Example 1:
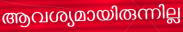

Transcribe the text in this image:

ആവശ്യമായിരുന്നില്ല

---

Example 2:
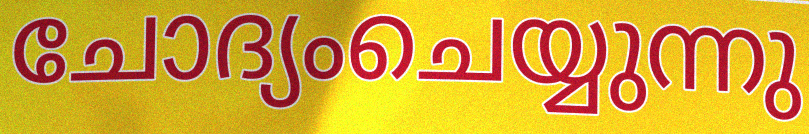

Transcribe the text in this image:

ചോദ്യംചെയ്യുന്നു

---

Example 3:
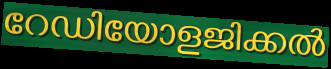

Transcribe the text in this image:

റേഡിയോളജിക്കൽ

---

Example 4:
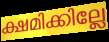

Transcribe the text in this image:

ക്ഷമിക്കില്ലേ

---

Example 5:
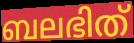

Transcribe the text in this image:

ബലഭിത്